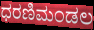
ಧರಣಿಮಂಡಲ